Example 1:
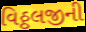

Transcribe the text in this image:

વિઠ્ઠલજીની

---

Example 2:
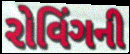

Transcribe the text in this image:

રોવિંગની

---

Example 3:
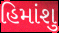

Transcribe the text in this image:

હિમાંશુ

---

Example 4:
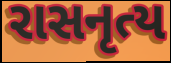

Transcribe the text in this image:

રાસનૃત્ય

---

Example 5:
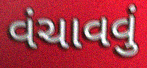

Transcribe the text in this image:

વંચાવવું